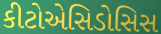
કીટોએસિડોસિસ